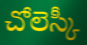
చోలెస్కీ